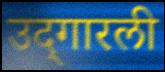
उद्‌गारली